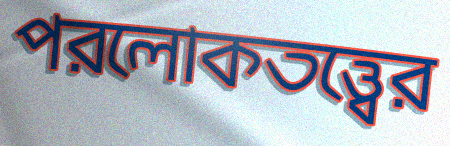
পরলোকতত্ত্বের